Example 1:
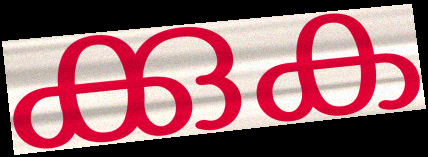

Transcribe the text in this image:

ക്കുക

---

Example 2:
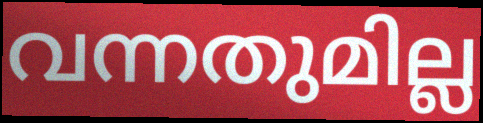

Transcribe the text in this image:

വന്നതുമില്ല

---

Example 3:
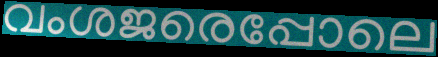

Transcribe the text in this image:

വംശജരെപ്പോലെ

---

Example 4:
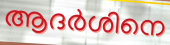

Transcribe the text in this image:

ആദർശിനെ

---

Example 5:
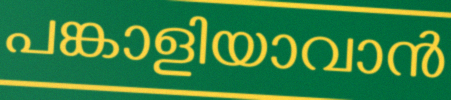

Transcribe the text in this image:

പങ്കാളിയാവാൻ